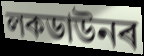
লকডাউনৰ